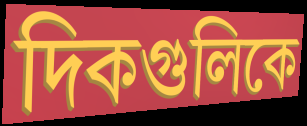
দিকগুলিকে